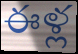
ఈళ్ల